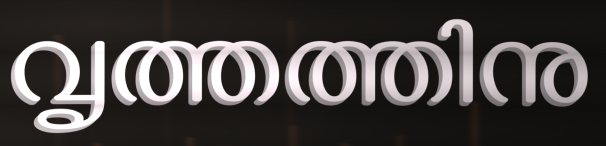
വൃത്തത്തിനു